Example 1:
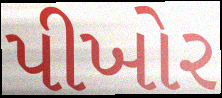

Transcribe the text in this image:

પીખોર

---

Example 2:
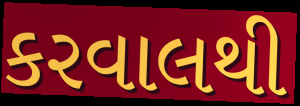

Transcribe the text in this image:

કરવાલથી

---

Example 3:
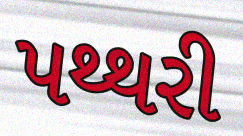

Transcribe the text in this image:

પથ્થરી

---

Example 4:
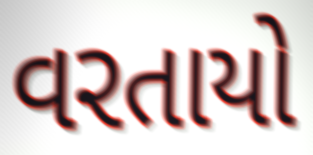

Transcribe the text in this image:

વરતાયો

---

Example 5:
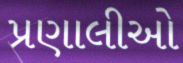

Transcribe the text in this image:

પ્રણાલીઓ